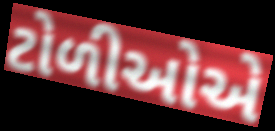
ટોળીઓએ